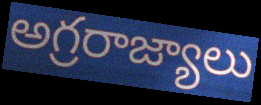
అగ్రరాజ్యాలు